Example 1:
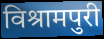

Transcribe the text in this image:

विश्रामपुरी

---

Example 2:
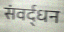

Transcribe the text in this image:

संवर्द्धन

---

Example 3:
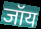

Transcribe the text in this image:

जॉय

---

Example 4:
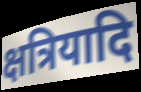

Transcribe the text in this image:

क्षत्रियादि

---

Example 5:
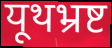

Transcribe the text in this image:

यूथभ्रष्ट